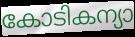
കോടികന്യാ